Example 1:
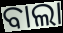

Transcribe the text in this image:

ବାଲା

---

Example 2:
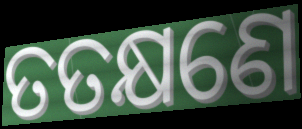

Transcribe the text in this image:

ତତକ୍ଷଣେ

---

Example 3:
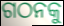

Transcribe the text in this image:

ଗଠନକୁ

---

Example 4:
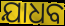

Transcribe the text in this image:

ଯାଧବ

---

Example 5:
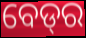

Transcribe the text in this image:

ବେଡ୍‍ର